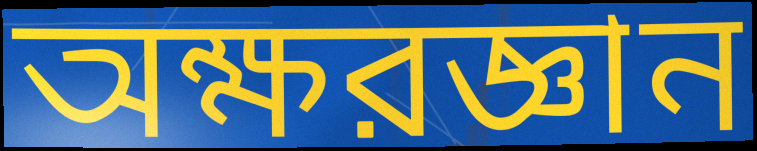
অক্ষরজ্ঞান